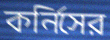
কর্নিসের